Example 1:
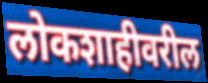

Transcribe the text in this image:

लोकशाहीवरील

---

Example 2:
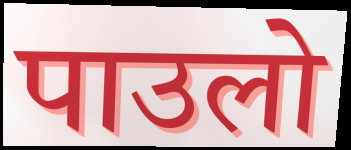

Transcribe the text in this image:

पाउलो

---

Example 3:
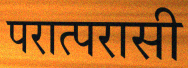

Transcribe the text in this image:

परात्परासी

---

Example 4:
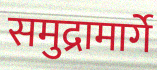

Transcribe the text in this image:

समुद्रामार्गे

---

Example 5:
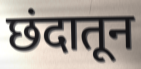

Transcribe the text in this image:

छंदातून